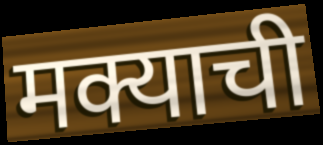
मक्याची